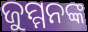
ଜୁମ୍ମନଙ୍କ